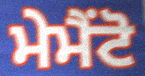
ਮੇਮੈਂਟੋ